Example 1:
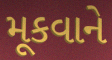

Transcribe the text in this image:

મૂકવાને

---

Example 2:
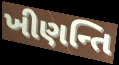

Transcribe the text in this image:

ખીણન્તિ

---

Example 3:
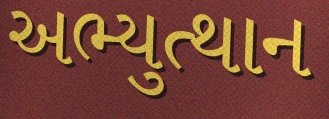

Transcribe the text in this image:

અભ્યુત્થાન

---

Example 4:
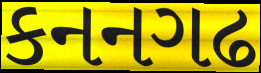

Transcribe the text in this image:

કનનગઢ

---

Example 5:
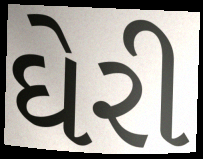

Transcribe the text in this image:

ઘેરી